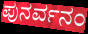
ಪುನರ್ವನಂ